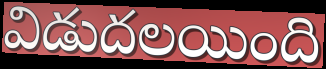
విడుదలయింది